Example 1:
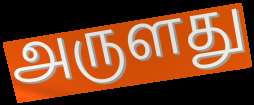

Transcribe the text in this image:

அருளது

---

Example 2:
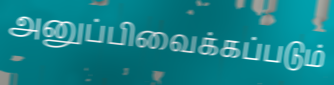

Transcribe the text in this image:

அனுப்பிவைக்கப்படும்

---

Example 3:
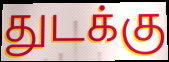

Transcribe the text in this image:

துடக்கு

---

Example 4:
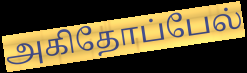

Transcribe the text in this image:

அகிதோப்பேல்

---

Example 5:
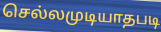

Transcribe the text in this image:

செல்லமுடியாதபடி